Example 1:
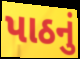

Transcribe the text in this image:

પાઠનું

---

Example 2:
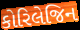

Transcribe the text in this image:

કોરિલેજિન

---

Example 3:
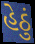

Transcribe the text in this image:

હેઠું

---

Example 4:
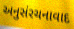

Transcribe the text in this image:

અનુસંરચનાવાદ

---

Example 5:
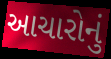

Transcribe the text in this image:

આચારોનું